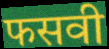
फसवी